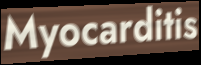
Myocarditis